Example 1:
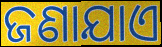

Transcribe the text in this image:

ଜଣାଯାଏ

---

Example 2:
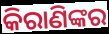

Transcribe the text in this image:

କିରାଣିଙ୍କର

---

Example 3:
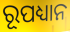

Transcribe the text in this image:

ରୂପଧ୍ୟାନ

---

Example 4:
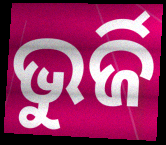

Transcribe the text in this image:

ଭୁର୍ଜି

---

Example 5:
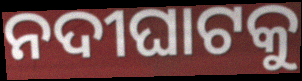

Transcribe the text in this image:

ନଦୀଘାଟକୁ